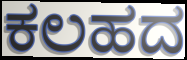
ಕಲಹದ